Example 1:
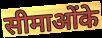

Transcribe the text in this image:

सीमाओंके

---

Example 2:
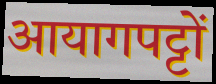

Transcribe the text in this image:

आयागपट्टों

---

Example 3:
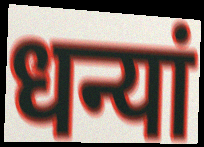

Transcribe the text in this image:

धन्यां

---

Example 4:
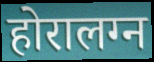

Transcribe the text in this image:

होरालग्न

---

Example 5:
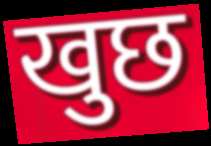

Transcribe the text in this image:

खुछ